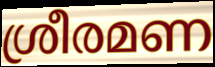
ശ്രീരമണ